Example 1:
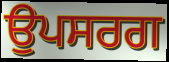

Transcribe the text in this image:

ਉਪਸਰਗ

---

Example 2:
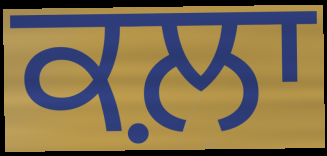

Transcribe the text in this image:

ਕਲ਼ਾ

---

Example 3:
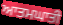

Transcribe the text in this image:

ਆਤਮਘਾਤੀ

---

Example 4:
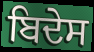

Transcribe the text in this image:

ਬਿਦੇਸ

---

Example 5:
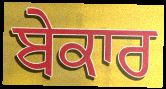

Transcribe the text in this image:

ਬੇਕਾਰ